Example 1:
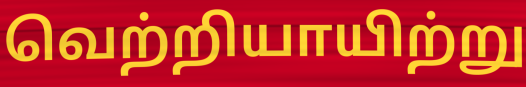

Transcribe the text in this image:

வெற்றியாயிற்று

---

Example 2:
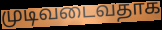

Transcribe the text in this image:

முடிவடைவதாக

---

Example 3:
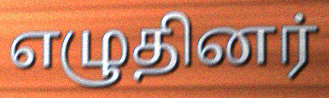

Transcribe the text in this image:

எழுதினர்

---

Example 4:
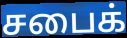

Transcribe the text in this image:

சபைக்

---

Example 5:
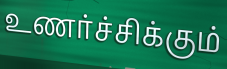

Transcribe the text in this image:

உணர்ச்சிக்கும்